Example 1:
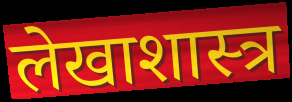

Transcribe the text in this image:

लेखाशास्त्र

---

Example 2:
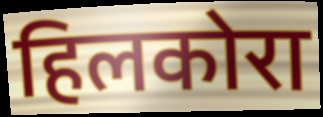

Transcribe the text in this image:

हिलकोरा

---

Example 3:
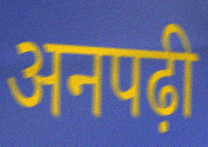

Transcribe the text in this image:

अनपढ़ी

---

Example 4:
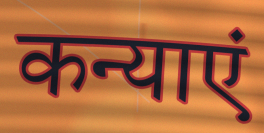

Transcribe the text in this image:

कन्याएं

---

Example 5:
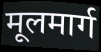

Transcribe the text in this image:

मूलमार्ग